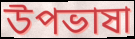
উপভাষা